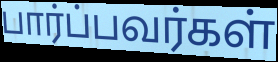
பார்ப்பவர்கள்